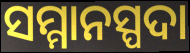
ସମ୍ମାନସ୍ପଦା